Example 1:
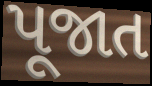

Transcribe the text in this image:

પૂજાત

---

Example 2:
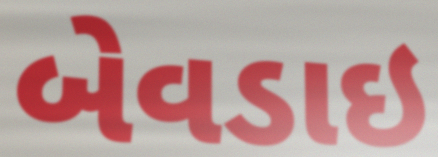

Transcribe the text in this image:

બેવડાઇ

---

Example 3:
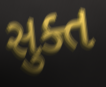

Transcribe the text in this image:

સુક્ત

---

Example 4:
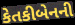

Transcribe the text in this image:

કેતકીબેનની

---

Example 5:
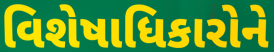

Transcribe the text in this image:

વિશેષાધિકારોને